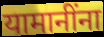
यामानींना